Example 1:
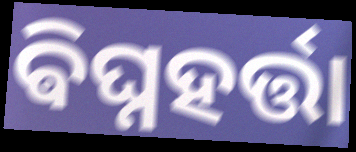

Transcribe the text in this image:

ଵିଘ୍ନହର୍ତ୍ତା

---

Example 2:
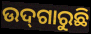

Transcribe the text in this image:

ଉଦ୍‌ଗାରୁଛି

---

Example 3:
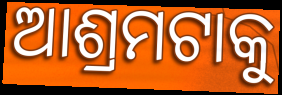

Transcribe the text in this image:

ଆଶ୍ରମଟାକୁ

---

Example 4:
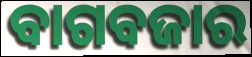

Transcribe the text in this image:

ବାଗବଜାର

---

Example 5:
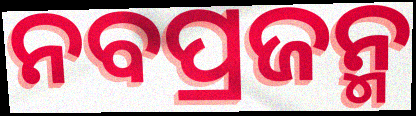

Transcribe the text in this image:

ନବପ୍ରଜନ୍ମ